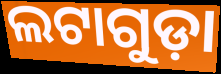
ଲଟାଗୁଡ଼ା